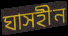
ঘাসহীন